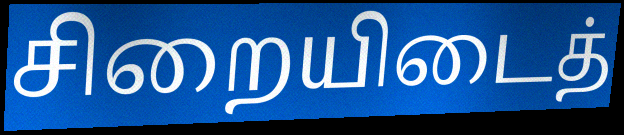
சிறையிடைத்